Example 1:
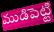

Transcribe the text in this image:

ముడిపెట్టి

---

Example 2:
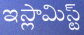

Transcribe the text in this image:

ఇస్లామిస్ట్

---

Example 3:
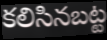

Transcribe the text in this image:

కలిసినబట్ట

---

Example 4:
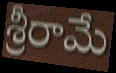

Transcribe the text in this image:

శ్రీరామే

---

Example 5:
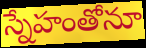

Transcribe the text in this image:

స్నేహంతోనూ